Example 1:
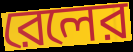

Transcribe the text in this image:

রেলের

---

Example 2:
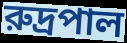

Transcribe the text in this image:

রুদ্রপাল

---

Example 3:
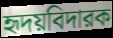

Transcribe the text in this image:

হৃদয়বিদারক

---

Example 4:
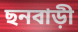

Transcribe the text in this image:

ছনবাড়ী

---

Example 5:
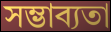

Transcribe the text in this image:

সম্ভাব্যতা